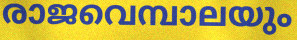
രാജവെമ്പാലയും